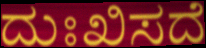
ದುಃಖಿಸದೆ